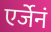
एर्जेनं